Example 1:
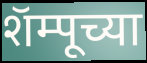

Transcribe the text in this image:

शॅम्पूच्या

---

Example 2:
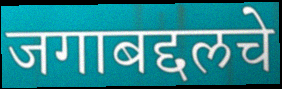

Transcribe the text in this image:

जगाबद्दलचे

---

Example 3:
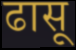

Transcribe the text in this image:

ढासू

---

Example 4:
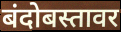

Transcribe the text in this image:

बंदोबस्तावर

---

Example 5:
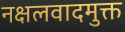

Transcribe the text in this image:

नक्षलवादमुक्त